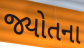
જ્યોતના